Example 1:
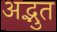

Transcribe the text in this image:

अद्भुत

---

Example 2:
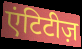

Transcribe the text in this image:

एंटिटीज़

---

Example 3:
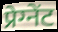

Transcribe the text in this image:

प्रेग्‍नेंट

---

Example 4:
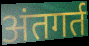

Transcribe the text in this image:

अंतगर्त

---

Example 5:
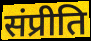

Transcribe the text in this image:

संप्रीति